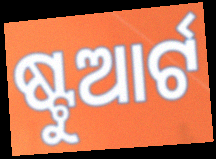
ଷ୍ଟୁଆର୍ଟ